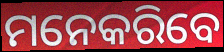
ମନେକରିବେ